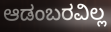
ಆಡಂಬರವಿಲ್ಲ